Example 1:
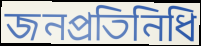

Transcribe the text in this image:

জনপ্রতিনিধি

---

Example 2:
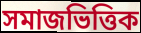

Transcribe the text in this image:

সমাজভিত্তিক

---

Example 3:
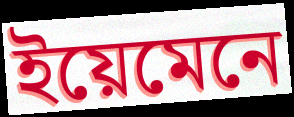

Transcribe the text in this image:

ইয়েমেনে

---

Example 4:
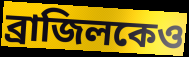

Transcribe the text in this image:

ব্রাজিলকেও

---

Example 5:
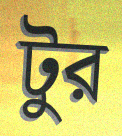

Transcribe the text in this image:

টুর